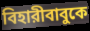
বিহারীবাবুকে